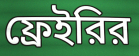
ফ্রেইরির